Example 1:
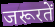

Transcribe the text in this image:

जरूरतें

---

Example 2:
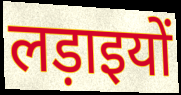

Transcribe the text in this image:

लड़ाइयों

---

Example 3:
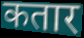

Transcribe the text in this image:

कतार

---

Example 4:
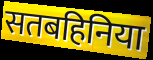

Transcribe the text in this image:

सतबहिनिया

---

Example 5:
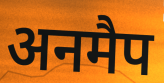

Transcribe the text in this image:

अनमैप